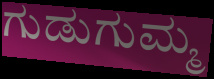
ಗುಡುಗುಮ್ಮ